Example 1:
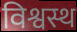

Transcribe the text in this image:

विश्वस्थ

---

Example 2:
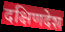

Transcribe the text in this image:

दक्षिणदेश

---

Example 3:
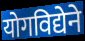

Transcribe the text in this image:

योगविद्येने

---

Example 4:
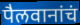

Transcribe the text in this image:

पैलवानांचं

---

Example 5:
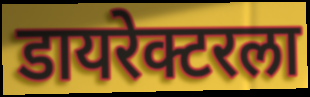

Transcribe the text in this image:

डायरेक्टरला